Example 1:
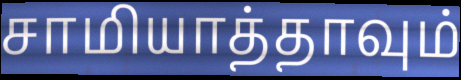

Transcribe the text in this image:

சாமியாத்தாவும்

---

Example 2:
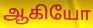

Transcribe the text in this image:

ஆகியோ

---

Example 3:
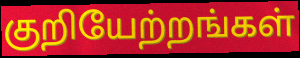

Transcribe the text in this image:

குறியேற்றங்கள்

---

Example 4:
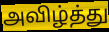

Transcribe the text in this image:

அவிழ்த்து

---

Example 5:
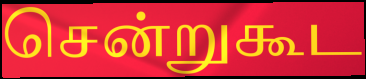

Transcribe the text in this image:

சென்றுகூட